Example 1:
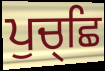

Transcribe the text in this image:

ਪੁਚ੍ਛਿ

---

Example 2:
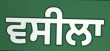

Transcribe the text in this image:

ਵਸੀਲਾ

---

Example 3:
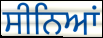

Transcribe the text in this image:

ਸੀਨਿਆਂ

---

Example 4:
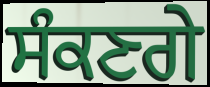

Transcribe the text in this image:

ਸੰਕਣਗੇ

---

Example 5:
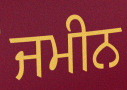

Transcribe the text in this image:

ਜਮੀਨ